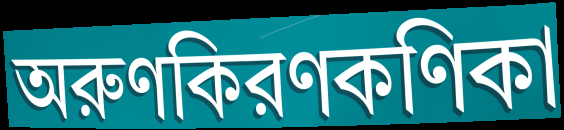
অরুণকিরণকণিকা